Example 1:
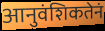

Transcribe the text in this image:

आनुवंशिकतेनं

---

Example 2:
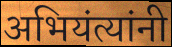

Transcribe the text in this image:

अभियंत्यांनी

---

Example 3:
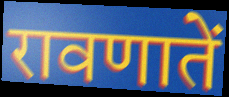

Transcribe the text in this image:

रावणातें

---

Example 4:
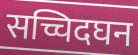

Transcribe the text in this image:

सच्चिदघन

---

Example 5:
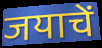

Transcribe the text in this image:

जयाचें